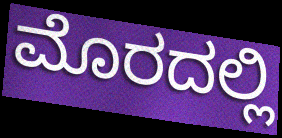
ಮೊರದಲ್ಲಿ